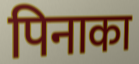
पिनाका